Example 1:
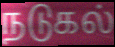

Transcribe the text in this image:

நடுகல்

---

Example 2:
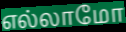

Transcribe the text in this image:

எல்லாமோ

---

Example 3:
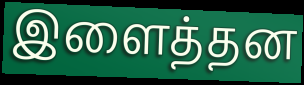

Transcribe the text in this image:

இளைத்தன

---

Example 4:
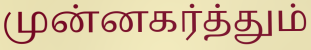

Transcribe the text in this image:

முன்னகர்த்தும்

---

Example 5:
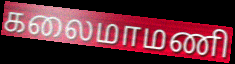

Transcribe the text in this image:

கலைமாமணி